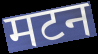
मटन